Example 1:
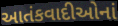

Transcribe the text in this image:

આતંકવાદીઓનાં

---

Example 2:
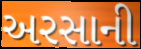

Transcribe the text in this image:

અરસાની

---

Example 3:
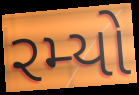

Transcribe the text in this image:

રમ્યો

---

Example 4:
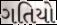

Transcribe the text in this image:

ગતિયો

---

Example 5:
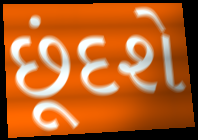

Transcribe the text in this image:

છૂંદશે